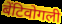
बेंटिवोगली